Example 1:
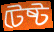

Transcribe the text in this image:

টেষ্ট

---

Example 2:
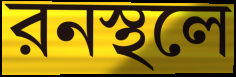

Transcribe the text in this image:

রনস্থলে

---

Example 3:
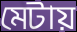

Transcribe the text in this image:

মেটায়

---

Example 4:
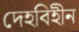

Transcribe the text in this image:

দেহবিহীন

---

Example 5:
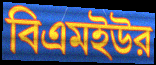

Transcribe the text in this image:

বিএমইউর